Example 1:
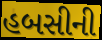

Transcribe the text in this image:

હબસીની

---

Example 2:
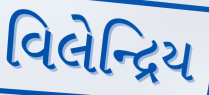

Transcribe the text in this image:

વિલેન્દ્રિય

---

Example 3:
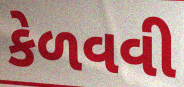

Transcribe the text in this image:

કેળવવી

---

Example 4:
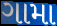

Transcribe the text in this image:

ગામા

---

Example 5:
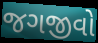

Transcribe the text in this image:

જગજીવો